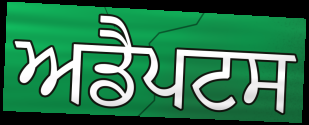
ਅਡੈਪਟਸ